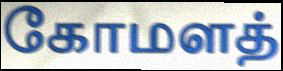
கோமளத்